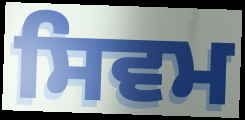
ਸਿਵਮ